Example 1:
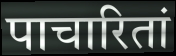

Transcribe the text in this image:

पाचारितां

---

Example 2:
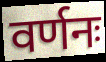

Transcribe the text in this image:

वर्णनः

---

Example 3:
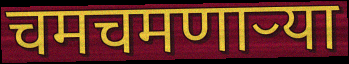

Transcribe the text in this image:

चमचमणाऱ्या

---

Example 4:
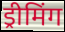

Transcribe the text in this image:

ड्रीमिंग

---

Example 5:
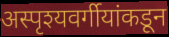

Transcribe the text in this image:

अस्पृश्यवर्गीयांकडून